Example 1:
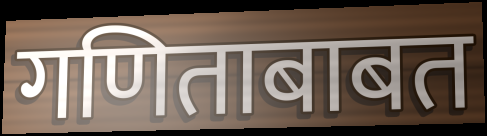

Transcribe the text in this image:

गणिताबाबत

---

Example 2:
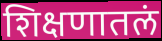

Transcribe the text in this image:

शिक्षणातलं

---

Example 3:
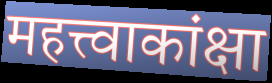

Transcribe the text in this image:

महत्त्वाकांक्षा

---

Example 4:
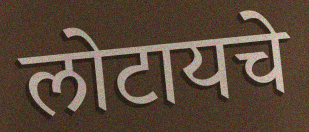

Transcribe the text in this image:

लोटायचे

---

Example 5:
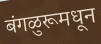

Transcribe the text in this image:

बंगळुरूमधून